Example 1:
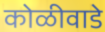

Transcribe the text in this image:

कोळीवाडे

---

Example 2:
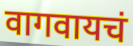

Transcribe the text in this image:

वागवायचं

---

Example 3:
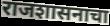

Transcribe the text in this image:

राजशासनाचा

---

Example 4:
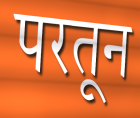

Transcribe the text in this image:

परतून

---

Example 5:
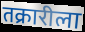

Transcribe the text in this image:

तक्रारीला